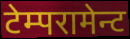
टेम्परामेन्ट